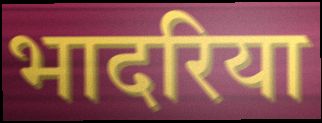
भादरिया